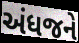
અંધજને